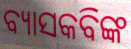
ବ୍ୟାସକବିଙ୍କ